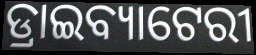
ଡ୍ରାଇବ୍ୟାଟେରୀ